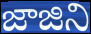
జాజిని